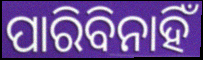
ପାରିବିନାହିଁ